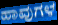
ಹಾವುಗಳ